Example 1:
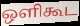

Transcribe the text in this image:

ஒளிகூட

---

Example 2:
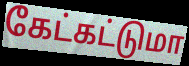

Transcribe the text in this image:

கேட்கட்டுமா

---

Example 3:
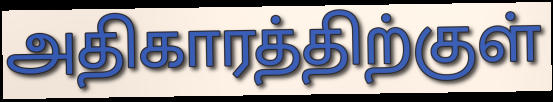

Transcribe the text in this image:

அதிகாரத்திற்குள்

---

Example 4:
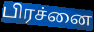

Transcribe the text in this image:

பிரச்னை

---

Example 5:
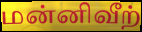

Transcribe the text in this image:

மன்னிவீற்